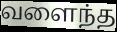
வளைந்த